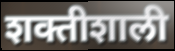
शक्तीशाली